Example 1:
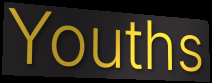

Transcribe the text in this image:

Youths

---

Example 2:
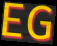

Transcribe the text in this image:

EG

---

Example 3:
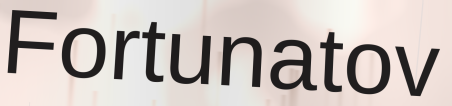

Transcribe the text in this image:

Fortunatov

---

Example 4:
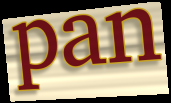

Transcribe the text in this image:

pan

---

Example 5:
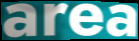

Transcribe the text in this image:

area